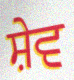
ਸ਼ੇਵ